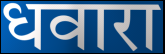
धवारा